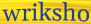
wriksho